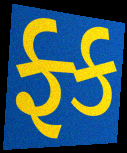
ફ્ક